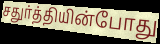
சதுர்த்தியின்போது